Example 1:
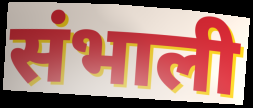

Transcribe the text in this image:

संभाली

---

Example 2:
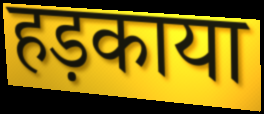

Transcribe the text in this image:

हड़काया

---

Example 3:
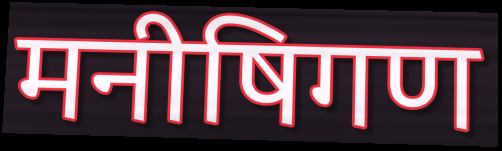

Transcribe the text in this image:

मनीषिगण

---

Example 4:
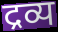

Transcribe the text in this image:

द्रव्य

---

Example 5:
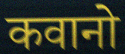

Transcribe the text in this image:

कवानो